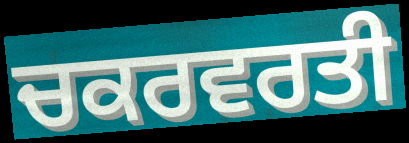
ਚਕਰਵਰਤੀ